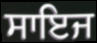
ਸਾਇਜ